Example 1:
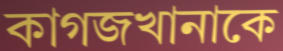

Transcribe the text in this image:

কাগজখানাকে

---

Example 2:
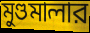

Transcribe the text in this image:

মুণ্ডমালার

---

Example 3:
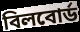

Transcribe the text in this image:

বিলবোর্ড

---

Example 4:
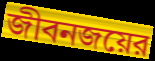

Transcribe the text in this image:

জীবনজয়ের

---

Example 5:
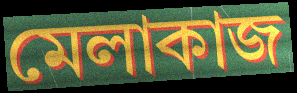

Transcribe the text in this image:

মেলাকাজ